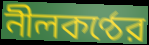
নীলকণ্ঠের